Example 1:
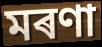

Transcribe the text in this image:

মৰণা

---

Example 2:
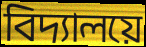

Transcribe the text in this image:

বিদ্যালয়ে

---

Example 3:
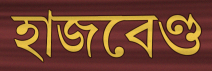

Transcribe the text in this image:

হাজবেণ্ড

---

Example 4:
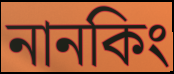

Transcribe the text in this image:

নানকিং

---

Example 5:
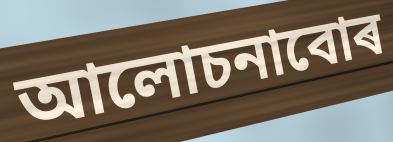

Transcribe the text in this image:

আলোচনাবোৰ